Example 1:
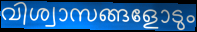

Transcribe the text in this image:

വിശ്വാസങ്ങളോടും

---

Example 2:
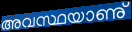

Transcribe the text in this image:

അവസ്ഥയാണു്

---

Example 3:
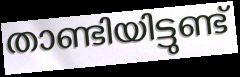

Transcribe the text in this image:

താണ്ടിയിട്ടുണ്ട്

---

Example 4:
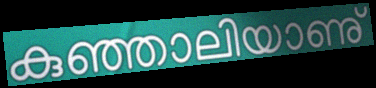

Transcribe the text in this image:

കുഞ്ഞാലിയാണു്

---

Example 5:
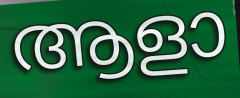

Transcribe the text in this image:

ആളാ